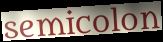
semicolon